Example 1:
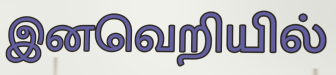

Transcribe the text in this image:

இனவெறியில்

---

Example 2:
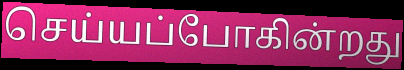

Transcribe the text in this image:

செய்யப்போகின்றது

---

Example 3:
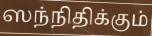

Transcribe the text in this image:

ஸந்நிதிக்கும்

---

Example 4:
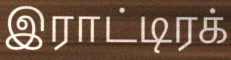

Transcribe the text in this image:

இராட்டிரக்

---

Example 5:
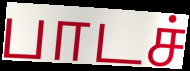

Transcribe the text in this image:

பாடச்